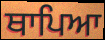
ਥਾਪਿਆ